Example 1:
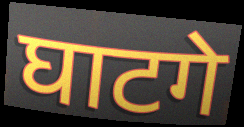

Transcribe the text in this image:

घाटगे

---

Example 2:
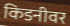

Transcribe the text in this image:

किडनीवर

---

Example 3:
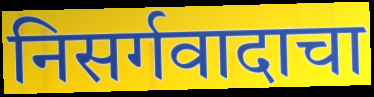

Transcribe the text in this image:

निसर्गवादाचा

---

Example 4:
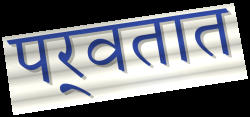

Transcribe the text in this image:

पर्वतात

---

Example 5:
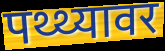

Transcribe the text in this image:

पथ्थ्यावर